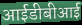
आईडीबीआई